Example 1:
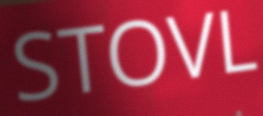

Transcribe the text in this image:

STOVL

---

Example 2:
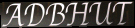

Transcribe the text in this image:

ADBHUT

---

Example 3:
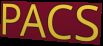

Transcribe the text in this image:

PACS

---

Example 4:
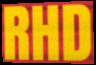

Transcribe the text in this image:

RHD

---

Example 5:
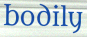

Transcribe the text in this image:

bodily